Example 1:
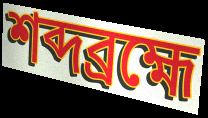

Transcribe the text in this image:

শব্দব্রহ্মে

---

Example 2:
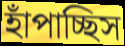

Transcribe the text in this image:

হাঁপাচ্ছিস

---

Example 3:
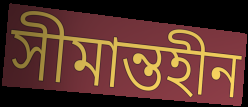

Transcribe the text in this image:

সীমান্তহীন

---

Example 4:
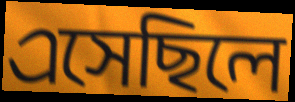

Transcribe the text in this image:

এসেছিলে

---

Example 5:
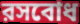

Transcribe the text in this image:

রসবোধ